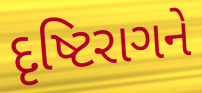
દૃષ્ટિરાગને